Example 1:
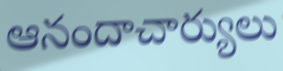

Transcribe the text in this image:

ఆనందాచార్యులు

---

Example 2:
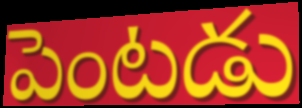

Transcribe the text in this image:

పెంటడు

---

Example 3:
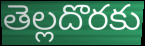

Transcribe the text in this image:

తెల్లదొరకు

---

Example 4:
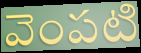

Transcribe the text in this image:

వెంపటి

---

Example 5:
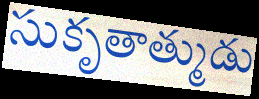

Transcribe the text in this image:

సుకృతాత్ముడు